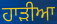
ਹਾੜੀਆ